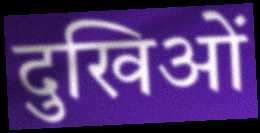
दुखिओं